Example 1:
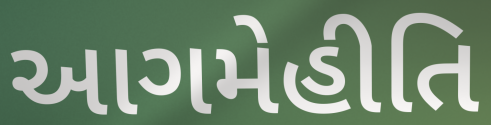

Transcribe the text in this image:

આગમેહીતિ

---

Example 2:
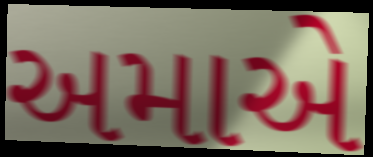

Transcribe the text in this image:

અમાએ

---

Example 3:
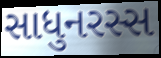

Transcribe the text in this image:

સાધુનરસ્સ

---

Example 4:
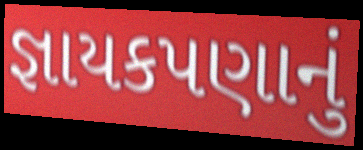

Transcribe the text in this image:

જ્ઞાયકપણાનું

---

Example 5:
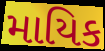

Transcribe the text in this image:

માયિક